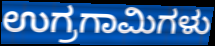
ಉಗ್ರಗಾಮಿಗಳು